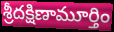
శ్రీదక్షిణామూర్తిం